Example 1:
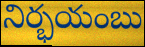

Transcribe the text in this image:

నిర్భయంబు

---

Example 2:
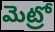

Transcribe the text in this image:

మెట్రో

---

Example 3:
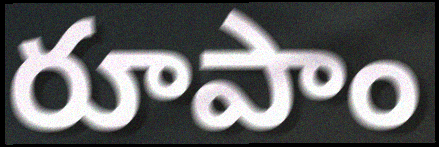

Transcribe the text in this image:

రూపాం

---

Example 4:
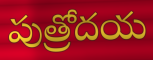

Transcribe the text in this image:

పుత్రోదయ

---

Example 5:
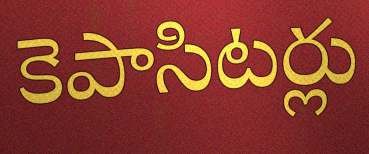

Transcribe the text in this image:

కెపాసిటర్లు